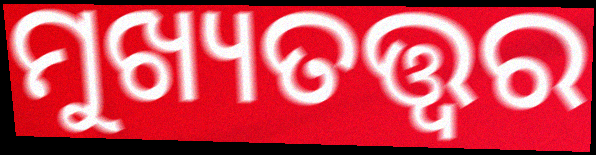
ମୁଖ୍ୟତତ୍ତ୍ୱର